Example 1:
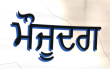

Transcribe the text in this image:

ਮੌਜੂਦਗ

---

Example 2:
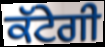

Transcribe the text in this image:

ਕੱਟੇਗੀ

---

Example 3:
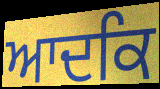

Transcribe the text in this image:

ਆਦਕਿ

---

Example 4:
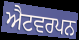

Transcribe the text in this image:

ਐਟਵਰਪਨ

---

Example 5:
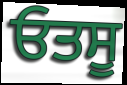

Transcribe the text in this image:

ਓਤਸੂ